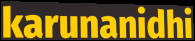
karunanidhi